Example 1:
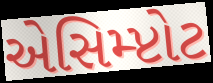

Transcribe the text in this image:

એસિમ્પ્ટોટ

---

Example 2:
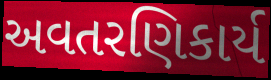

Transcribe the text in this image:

અવતરણિકાર્ય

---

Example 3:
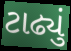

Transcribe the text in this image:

ટાઢ્યું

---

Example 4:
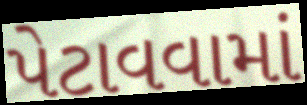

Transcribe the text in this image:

પેટાવવામાં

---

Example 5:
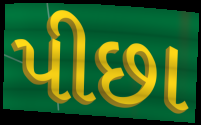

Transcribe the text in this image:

પીછા